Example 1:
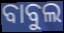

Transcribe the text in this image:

ବାବୁଲ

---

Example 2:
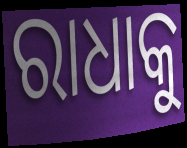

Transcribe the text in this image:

ରାଧାକୁ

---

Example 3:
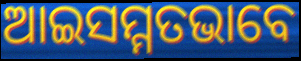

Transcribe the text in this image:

ଆଇସମ୍ମତଭାବେ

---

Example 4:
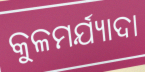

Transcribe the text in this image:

କୁଳମର୍ଯ୍ୟାଦା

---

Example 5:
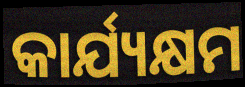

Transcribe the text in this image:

କାର୍ଯ୍ୟକ୍ଷମ